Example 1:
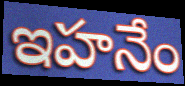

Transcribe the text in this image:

ఇహనేం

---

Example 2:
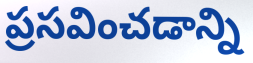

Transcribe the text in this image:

ప్రసవించడాన్ని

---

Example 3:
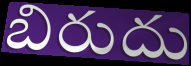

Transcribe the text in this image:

బిరుదు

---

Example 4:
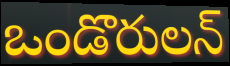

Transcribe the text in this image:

ఒండొరులన్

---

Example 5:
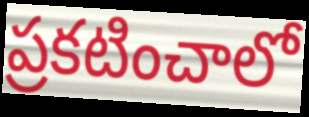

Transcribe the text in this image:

ప్రకటించాలో